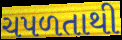
ચપળતાથી